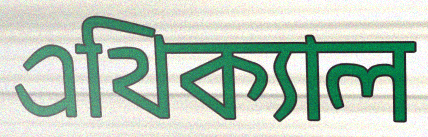
এথিক্যাল